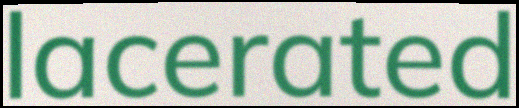
lacerated